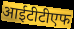
आईटीटीएफ